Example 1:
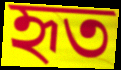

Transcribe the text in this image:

হৃত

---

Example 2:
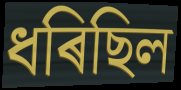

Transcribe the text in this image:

ধৰিছিল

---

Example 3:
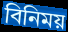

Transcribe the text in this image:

বিনিময়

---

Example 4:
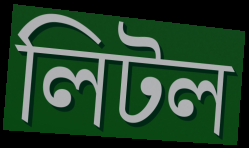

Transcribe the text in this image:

লিটল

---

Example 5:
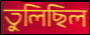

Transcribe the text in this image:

তুলিছিল